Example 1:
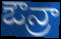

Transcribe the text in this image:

ఔన్రా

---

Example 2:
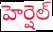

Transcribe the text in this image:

హెర్షెల్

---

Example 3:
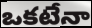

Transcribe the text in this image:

ఒకటేనా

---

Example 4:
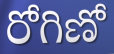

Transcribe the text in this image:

రోగిణో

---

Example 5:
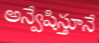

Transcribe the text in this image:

అన్వేషిస్తూనే